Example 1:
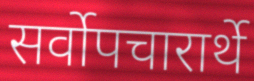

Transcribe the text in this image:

सर्वोपचारार्थे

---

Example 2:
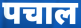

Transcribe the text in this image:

पचाल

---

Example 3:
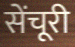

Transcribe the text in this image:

सेंचूरी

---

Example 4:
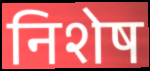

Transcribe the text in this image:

निशेष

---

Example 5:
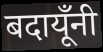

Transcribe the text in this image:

बदायूँनी